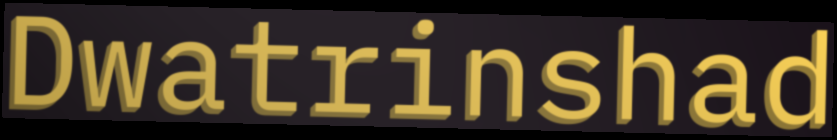
Dwatrinshad